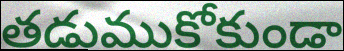
తడుముకోకుండా